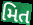
મિત